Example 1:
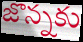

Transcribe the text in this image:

జొన్నకు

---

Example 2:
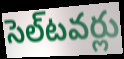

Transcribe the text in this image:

సెల్‌టవర్లు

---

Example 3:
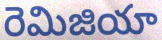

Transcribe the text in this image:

రెమిజియా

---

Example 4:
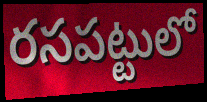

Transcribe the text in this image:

రసపట్టులో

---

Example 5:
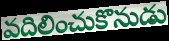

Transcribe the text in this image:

వదిలించుకొనుడు